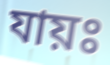
যায়ঃ